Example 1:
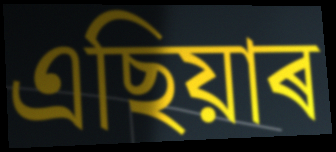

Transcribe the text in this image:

এছিয়াৰ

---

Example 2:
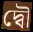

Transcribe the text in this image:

দ্বৌ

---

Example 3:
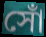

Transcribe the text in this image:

সোঁ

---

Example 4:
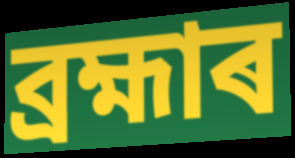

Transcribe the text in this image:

ব্ৰহ্মাৰ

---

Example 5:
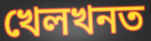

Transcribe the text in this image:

খেলখনত